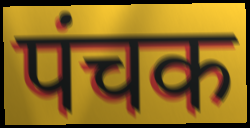
पंचक